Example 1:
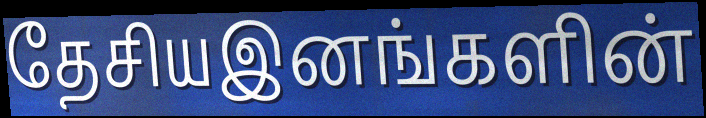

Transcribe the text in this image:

தேசியஇனங்களின்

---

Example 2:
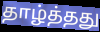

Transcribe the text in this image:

தாழ்த்தது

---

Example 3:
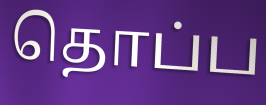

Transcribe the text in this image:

தொப்ப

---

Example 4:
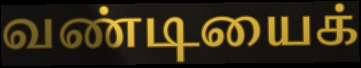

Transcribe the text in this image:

வண்டியைக்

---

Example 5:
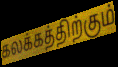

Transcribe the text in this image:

கலக்கத்திற்கும்